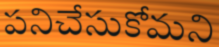
పనిచేసుకోమని